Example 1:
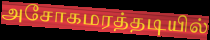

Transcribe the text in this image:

அசோகமரத்தடியில்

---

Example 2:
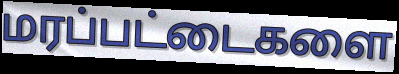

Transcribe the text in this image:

மரப்பட்டைகளை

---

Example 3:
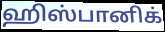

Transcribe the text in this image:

ஹிஸ்பானிக்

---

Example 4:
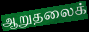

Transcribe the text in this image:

ஆறுதலைக்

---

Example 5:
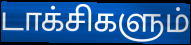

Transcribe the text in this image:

டாக்சிகளும்